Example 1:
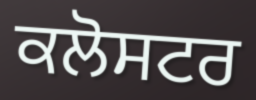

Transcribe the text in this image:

ਕਲੋਸਟਰ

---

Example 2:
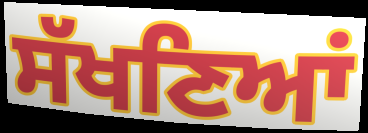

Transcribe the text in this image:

ਸੱਖਣਿਆਂ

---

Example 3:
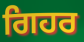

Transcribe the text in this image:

ਗਿਹਰ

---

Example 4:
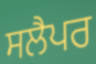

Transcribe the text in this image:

ਸਲੈਪਰ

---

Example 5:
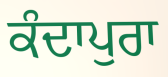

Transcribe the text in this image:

ਕੰਦਾਪੁਰਾ